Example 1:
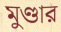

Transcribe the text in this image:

মুণ্ডার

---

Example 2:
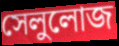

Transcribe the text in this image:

সেলুলোজ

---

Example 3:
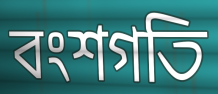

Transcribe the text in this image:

বংশগতি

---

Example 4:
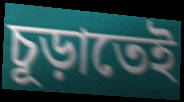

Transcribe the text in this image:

চূড়াতেই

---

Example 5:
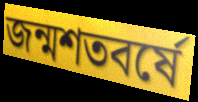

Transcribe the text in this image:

জন্মশতবর্ষে